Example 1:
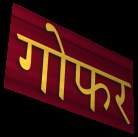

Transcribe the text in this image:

गोफर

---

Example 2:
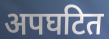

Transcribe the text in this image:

अपघटित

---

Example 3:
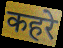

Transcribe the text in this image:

कहरे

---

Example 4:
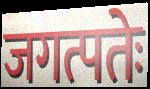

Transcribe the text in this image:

जगत्पतेः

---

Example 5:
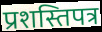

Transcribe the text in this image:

प्रशस्तिपत्र